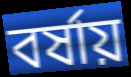
বর্ষায়